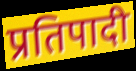
प्रतिपादी